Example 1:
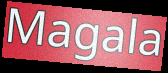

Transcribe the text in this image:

Magala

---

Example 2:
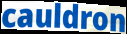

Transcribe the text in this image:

cauldron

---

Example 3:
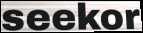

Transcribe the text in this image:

seekor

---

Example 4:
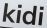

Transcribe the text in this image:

kidi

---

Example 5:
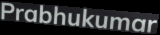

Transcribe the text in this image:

Prabhukumar